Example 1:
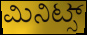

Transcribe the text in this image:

ಮಿನಿಟ್ಸ್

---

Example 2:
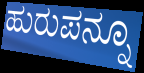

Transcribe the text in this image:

ಹುರುಪನ್ನೂ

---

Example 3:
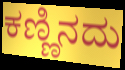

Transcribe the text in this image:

ಕಣ್ಣಿನದು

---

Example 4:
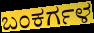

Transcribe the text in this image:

ಬಂಕರ್ಗಳ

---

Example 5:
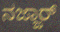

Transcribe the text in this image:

ನಜ್ಜಾರ್